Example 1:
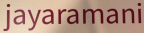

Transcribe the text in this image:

jayaramani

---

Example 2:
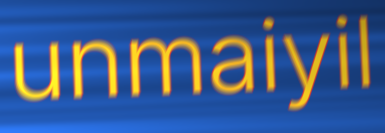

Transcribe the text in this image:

unmaiyil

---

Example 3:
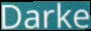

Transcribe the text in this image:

Darke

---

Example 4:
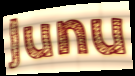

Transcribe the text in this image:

Junu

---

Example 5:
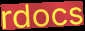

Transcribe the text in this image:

rdocs